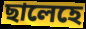
ছালেহে